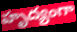
హృద్యంగా